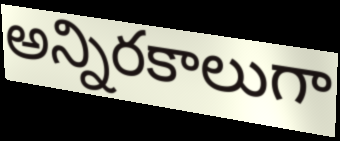
అన్నిరకాలుగా